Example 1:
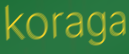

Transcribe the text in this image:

koraga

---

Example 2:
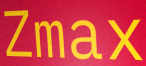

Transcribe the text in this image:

Zmax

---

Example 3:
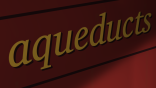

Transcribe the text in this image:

aqueducts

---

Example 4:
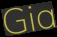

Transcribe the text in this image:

Gia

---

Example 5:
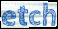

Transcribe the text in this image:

etch